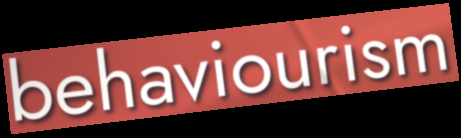
behaviourism